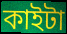
কাইটা